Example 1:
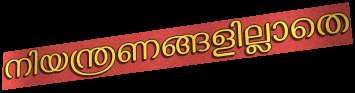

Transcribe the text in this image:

നിയന്ത്രണങ്ങളില്ലാതെ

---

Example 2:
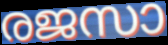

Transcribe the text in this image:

രജസാ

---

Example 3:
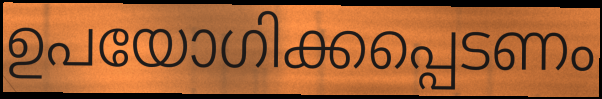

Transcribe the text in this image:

ഉപയോഗിക്കപ്പെടണം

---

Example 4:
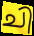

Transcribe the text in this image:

ചി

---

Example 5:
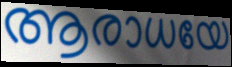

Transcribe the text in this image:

ആരാധയേ